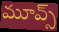
మూవ్స్